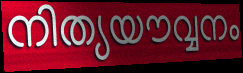
നിത്യയൗവ്വനം